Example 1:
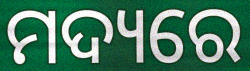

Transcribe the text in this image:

ମଦ୍ୟରେ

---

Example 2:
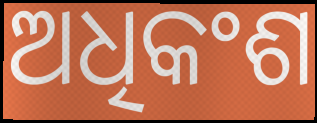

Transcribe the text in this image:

ଅଧିକଂଶ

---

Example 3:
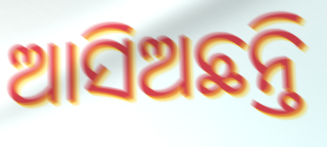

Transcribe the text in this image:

ଆସିଅଛନ୍ତି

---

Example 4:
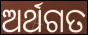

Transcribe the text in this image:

ଅର୍ଥଗତ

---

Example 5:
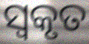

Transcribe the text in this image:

ସ୍ୱକୃତ